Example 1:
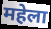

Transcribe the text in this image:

महेला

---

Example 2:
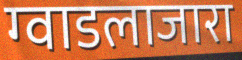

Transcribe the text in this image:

ग्वाडलाजारा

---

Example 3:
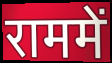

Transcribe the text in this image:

राममें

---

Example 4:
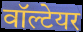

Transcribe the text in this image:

वॉल्टेयर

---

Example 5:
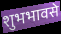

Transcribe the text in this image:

शुभभावसे